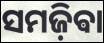
ସମଜ଼ିଵା